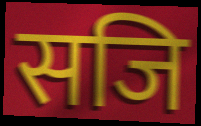
सजि